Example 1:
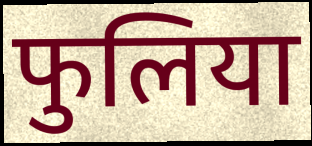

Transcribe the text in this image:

फुलिया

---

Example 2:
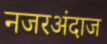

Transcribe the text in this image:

नजरअंदाज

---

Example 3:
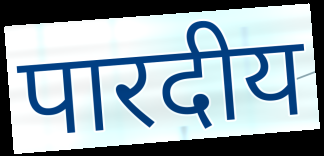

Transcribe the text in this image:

पारदीय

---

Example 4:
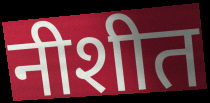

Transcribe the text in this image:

नीशीत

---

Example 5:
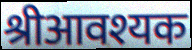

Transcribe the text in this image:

श्रीआवश्यक